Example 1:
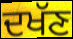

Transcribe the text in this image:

ਦਖੱਣ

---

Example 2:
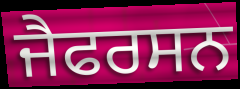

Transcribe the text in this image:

ਜੈਫਰਸਨ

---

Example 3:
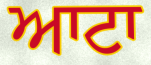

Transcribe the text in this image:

ਆਟਾ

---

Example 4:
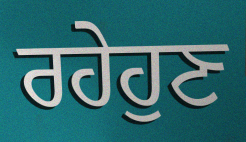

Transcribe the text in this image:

ਰਹੇਹੁਣ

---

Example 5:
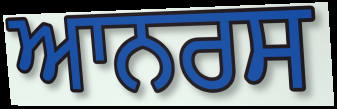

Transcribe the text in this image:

ਆਨਰਸ